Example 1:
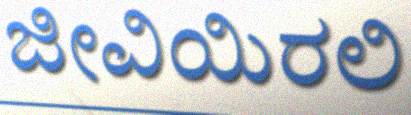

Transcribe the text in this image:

ಜೀವಿಯಿರಲಿ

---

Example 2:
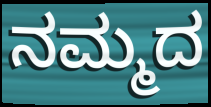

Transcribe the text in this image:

ನಮ್ಮದ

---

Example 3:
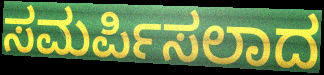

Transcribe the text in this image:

ಸಮರ್ಪಿಸಲಾದ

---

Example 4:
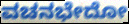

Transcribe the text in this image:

ವಚನಭೇದೋ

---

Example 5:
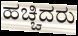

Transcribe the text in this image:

ಹಚ್ಚಿದರು